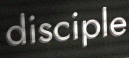
disciple